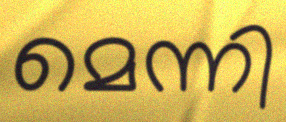
മെന്നി